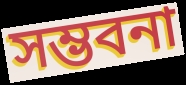
সম্ভবনা